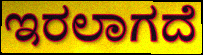
ಇರಲಾಗದೆ